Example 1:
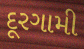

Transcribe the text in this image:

દૂરગામી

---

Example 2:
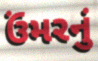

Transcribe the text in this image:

ઉંમરનું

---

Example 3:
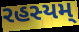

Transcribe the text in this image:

રહસ્યમ્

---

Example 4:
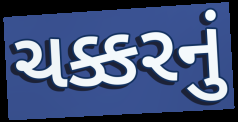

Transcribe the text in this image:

ચક્કરનું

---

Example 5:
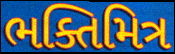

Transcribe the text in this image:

ભક્તિમિત્ર